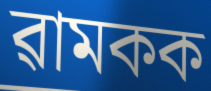
ৱামকক